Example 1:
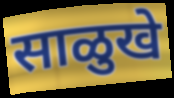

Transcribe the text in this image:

साळुखे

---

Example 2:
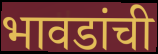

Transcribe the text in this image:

भावडांची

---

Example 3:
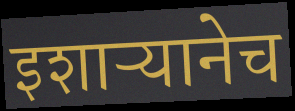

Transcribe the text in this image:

इशाऱ्यानेच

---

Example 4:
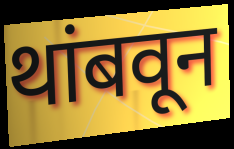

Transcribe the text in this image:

थांबवून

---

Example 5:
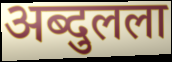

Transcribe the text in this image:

अब्दुलला